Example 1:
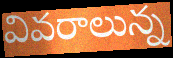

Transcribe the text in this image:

వివరాలున్న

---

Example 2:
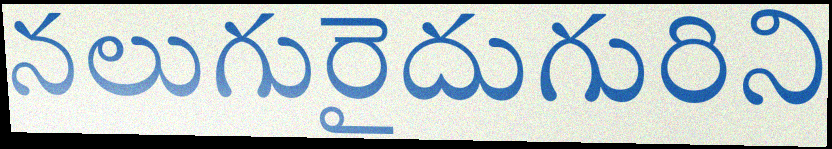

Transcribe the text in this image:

నలుగురైదుగురిని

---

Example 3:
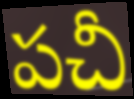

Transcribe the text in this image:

పచీ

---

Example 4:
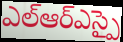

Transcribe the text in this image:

ఎల్ఆర్ఎస్పై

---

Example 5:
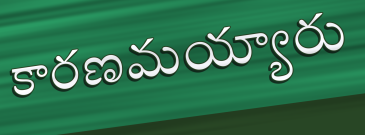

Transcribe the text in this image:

కారణమయ్యారు